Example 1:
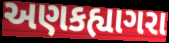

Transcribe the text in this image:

અણકહ્યાગરા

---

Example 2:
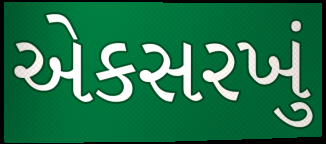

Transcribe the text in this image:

એકસરખું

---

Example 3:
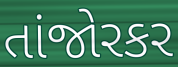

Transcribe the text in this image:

તાંજોરકર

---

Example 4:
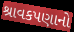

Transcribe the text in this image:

શ્રાવકપણાનો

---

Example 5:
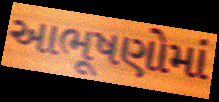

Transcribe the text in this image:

આભૂષણોમાં